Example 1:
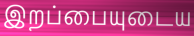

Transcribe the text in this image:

இறப்பையுடைய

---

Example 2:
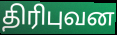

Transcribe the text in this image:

திரிபுவன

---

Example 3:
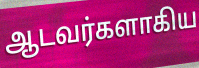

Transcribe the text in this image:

ஆடவர்களாகிய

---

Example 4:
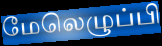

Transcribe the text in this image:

மேலெழுப்பி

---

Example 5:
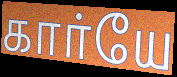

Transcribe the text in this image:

கார்யே